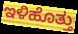
ಇಳಿಹೊತ್ತು